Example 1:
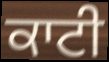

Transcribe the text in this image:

ਕਾਟੀ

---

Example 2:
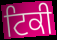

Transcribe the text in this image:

ਟਿਕੀ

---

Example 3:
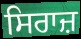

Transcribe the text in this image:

ਸਿਰਾਜ਼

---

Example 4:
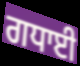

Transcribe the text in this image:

ਗਧਾਈ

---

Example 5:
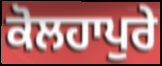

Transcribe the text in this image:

ਕੋਲਹਾਪੁਰੇ